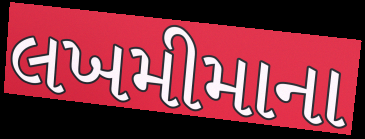
લખમીમાના